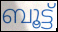
ബൂട്ട്